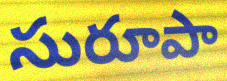
సురూపా